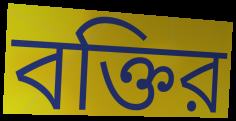
বক্তির